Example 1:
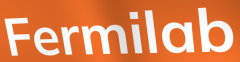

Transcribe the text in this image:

Fermilab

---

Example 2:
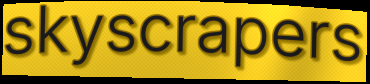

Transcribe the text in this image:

skyscrapers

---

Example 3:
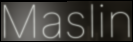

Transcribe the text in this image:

Maslin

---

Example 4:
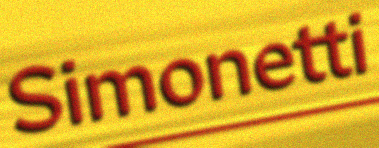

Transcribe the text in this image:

Simonetti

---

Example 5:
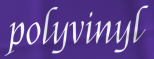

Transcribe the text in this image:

polyvinyl